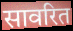
सावरित